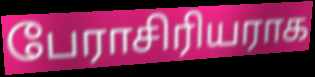
பேராசிரியராக